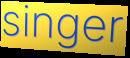
singer